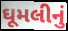
ઘૂમલીનું